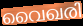
വൈഖരി